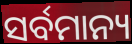
ସର୍ବମାନ୍ୟ